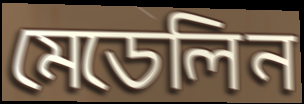
মেডেলিন